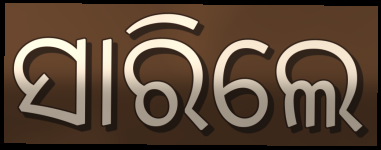
ସାରିଲେ